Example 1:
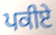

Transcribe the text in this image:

ਪਕੀਏ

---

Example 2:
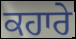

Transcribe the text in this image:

ਕਹਾਰੇ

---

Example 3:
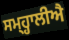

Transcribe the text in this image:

ਸਮ੍ਹ੍ਹਾਲੀਐ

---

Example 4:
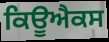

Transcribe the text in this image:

ਕਿਊਐਕਸ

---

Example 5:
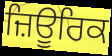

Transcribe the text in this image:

ਜ਼ਿਊਰਿਕ